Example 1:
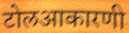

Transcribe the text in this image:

टोलआकारणी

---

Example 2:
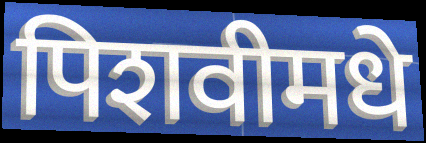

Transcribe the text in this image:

पिशवीमधे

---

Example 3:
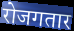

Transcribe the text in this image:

रोजगतार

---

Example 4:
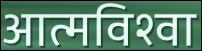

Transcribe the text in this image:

आत्मविश्वा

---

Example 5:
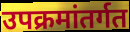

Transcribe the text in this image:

उपक्रमांतर्गत